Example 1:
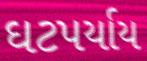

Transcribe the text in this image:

ઘટપર્યાય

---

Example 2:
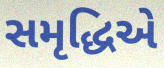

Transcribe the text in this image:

સમૃદ્ધિએ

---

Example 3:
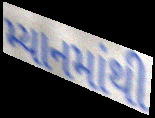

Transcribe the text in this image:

મ્યાનમાંથી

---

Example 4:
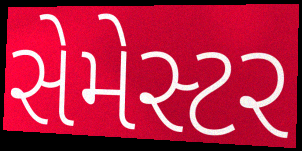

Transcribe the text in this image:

સેમેસ્ટર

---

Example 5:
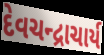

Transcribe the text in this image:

દેવચન્દ્રાચાર્ય